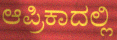
ಆಪ್ರಿಕಾದಲ್ಲಿ